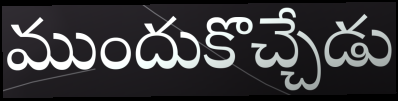
ముందుకొచ్చేడు